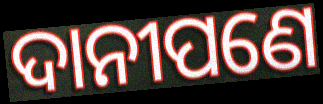
ଦାନୀପଣେ